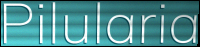
Pilularia